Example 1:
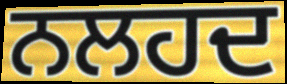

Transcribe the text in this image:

ਨਲਹਦ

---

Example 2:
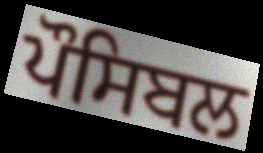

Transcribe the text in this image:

ਪੌਸਿਬਲ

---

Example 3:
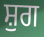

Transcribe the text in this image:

ਸ਼ੁਗ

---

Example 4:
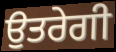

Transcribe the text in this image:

ਉਤਰੇਗੀ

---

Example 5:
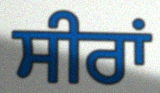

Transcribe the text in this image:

ਸੀਰਾਂ